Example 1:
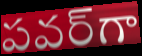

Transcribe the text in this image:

పవర్‌గా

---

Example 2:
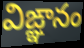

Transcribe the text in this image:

విఙ్ఞానం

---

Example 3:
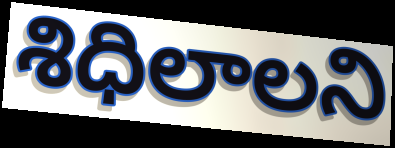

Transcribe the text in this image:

శిధిలాలని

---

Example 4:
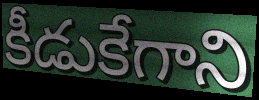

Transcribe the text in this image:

కీడుకేగాని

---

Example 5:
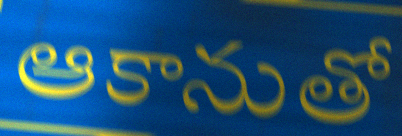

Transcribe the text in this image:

ఆకానుతో